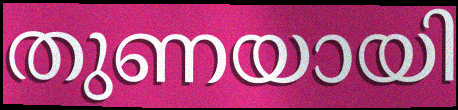
തുണയായി